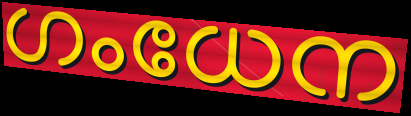
ഗംധേന